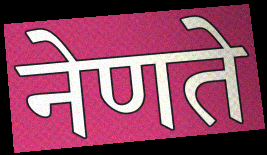
नेणते